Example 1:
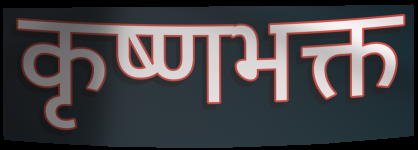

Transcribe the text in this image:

कृष्णभक्त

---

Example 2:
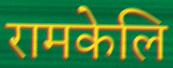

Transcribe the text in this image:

रामकेलि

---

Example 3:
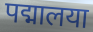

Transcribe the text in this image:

पद्मालया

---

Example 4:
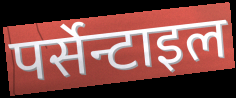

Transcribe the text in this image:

पर्सेन्टाइल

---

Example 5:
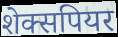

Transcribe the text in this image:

शेक्सपियर